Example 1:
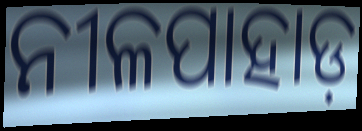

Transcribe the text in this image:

ନୀଳପାହାଡ଼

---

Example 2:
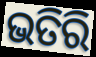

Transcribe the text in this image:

ଭତିରି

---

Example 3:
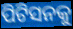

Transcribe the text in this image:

ପିଟିସନକୁ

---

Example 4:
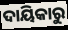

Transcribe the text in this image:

ଦାୟିକାରୁ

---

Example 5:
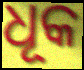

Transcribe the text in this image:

ଧୂକ